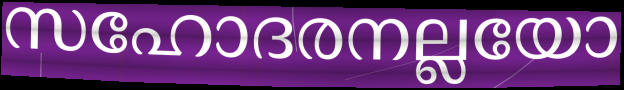
സഹോദരനല്ലയോ